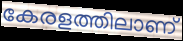
കേരളത്തിലാണ്